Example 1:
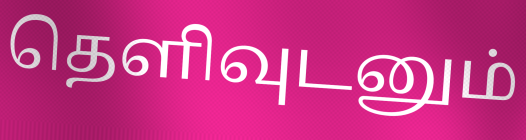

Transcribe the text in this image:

தெளிவுடனும்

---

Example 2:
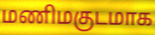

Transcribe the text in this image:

மணிமகுடமாக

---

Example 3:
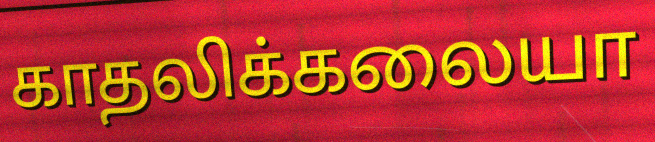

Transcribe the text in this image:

காதலிக்கலையா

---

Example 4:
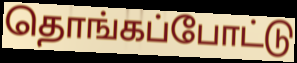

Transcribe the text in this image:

தொங்கப்போட்டு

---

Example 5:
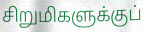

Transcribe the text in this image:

சிறுமிகளுக்குப்